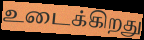
உடைக்கிறது